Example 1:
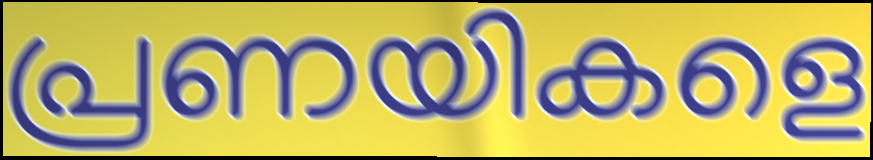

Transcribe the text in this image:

പ്രണയികളെ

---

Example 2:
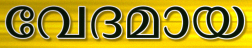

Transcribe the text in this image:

വേദമായ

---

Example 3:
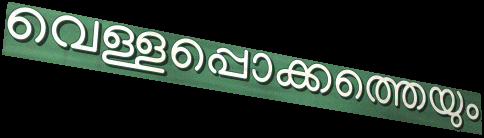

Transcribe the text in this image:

വെള്ളപ്പൊക്കത്തെയും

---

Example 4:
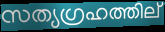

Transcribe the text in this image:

സത്യഗ്രഹത്തില്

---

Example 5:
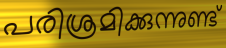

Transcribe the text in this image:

പരിശ്രമിക്കുന്നുണ്ട്